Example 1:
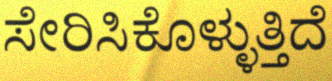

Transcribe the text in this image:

ಸೇರಿಸಿಕೊಳ್ಳುತ್ತಿದೆ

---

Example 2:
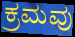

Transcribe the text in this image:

ಕ್ರಮವು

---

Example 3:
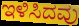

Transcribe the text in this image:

ಇಳಿಸಿದವು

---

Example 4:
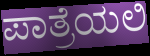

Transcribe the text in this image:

ಪಾತ್ರೆಯಲಿ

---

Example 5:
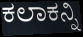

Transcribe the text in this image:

ಕಲಾಕನ್ನಿ